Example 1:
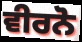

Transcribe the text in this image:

ਵੀਰਨੋ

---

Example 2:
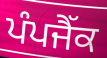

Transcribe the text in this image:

ਪੰਪਜੈੱਕ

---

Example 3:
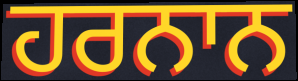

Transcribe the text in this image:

ਹਰਨਾਨ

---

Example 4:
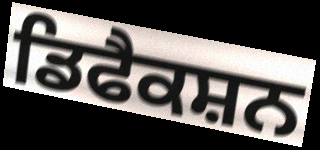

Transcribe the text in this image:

ਡਿਫੈਕਸ਼ਨ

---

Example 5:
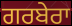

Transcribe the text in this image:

ਗਰਬੇਰਾ